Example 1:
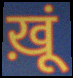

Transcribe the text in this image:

ख़ूं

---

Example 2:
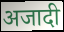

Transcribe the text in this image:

अजादी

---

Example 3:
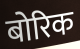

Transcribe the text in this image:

बोरिक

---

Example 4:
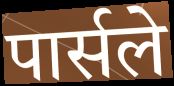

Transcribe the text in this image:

पार्सले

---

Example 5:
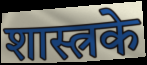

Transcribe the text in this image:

शास्त्रके